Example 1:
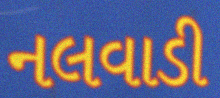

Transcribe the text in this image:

નલવાડી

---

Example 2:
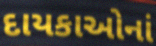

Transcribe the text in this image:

દાયકાઓનાં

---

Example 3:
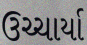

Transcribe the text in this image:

ઉચ્ચાર્યા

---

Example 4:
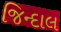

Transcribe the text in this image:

જિન્દાલ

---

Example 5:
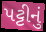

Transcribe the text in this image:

પટ્ટીનું